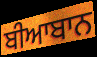
ਬੀਆਬਾਨ